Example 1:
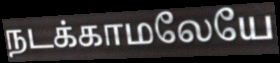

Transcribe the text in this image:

நடக்காமலேயே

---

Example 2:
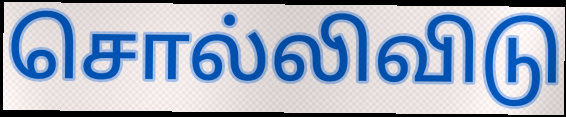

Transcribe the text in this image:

சொல்லிவிடு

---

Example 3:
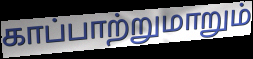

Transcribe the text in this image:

காப்பாற்றுமாறும்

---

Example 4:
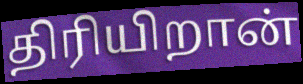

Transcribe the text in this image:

திரியிறான்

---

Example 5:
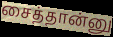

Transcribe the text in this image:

சைத்தான்னு